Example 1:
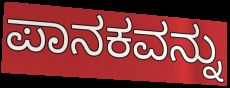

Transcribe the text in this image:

ಪಾನಕವನ್ನು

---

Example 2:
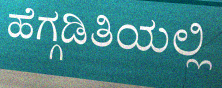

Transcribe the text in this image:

ಹೆಗ್ಗಡಿತಿಯಲ್ಲಿ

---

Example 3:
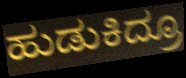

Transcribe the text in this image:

ಹುಡುಕಿದ್ರೂ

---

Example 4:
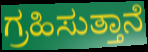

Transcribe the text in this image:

ಗ್ರಹಿಸುತ್ತಾನೆ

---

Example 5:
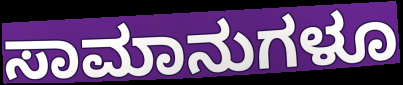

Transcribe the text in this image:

ಸಾಮಾನುಗಳೂ